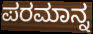
ಪರಮಾನ್ನ